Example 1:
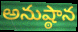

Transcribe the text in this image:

అనుష్ఠాన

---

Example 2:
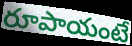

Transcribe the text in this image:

రూపాయంటే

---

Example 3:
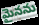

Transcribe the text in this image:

మైనను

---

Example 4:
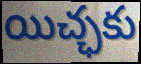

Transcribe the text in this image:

యిచ్ఛకు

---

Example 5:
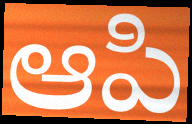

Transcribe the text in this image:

ఆపి